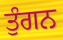
ਤੁੰਗਨ